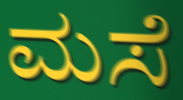
ಮಸೆ